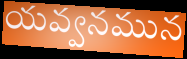
యవ్వనమున